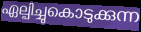
ഏല്പിച്ചുകൊടുക്കുന്ന